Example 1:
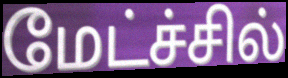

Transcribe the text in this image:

மேட்ச்சில்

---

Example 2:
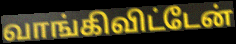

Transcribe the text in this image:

வாங்கிவிட்டேன்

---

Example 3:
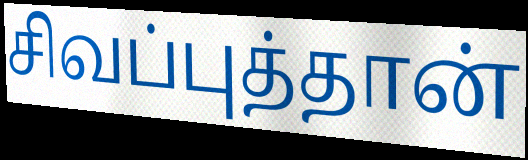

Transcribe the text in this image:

சிவப்புத்தான்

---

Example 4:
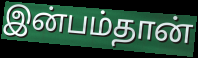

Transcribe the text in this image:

இன்பம்தான்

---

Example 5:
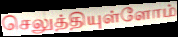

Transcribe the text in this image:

செலுத்தியுள்ளோம்